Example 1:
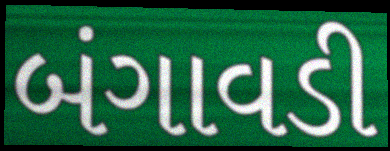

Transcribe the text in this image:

બંગાવડી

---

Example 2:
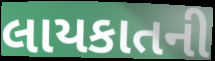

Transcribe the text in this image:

લાયકાતની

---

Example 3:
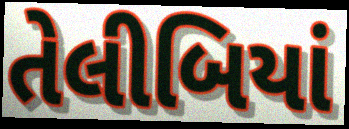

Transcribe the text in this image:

તેલીબિયાં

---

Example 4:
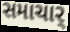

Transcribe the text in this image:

સમાચાર્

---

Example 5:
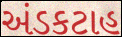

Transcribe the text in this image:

અંડકટાહ